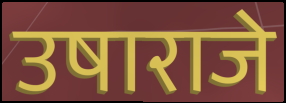
उषाराजे